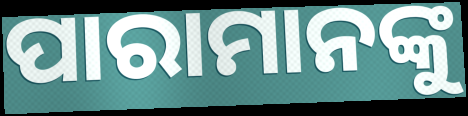
ପାରାମାନଙ୍କୁ